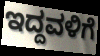
ಇದ್ದವಳಿಗೆ